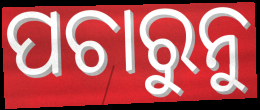
ପଚାରୁନୁ